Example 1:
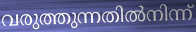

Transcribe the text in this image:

വരുത്തുന്നതിൽനിന്ന്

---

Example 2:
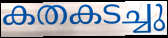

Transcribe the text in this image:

കതകടച്ചു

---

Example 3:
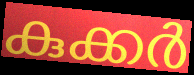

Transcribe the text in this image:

കുക്കർ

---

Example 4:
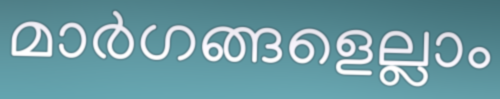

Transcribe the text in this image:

മാർഗങ്ങളെല്ലാം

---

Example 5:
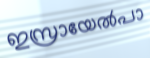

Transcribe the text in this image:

ഇസ്രായേൽപാ